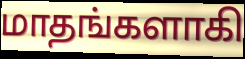
மாதங்களாகி